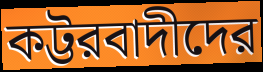
কট্টরবাদীদের